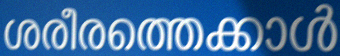
ശരീരത്തെക്കാൾ